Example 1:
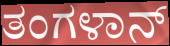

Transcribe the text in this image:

ತಂಗಳಾನ್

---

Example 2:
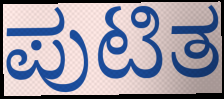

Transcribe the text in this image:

ಪುಟಿತ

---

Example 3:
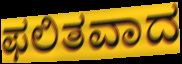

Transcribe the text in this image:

ಫಲಿತವಾದ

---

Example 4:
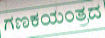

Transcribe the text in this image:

ಗಣಕಯಂತ್ರದ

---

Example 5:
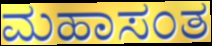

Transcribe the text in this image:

ಮಹಾಸಂತ